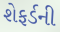
શેફર્ડની